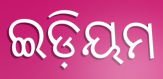
ଇଡ଼ିୟମ